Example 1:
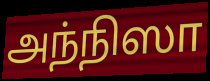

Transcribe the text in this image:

அந்நிஸா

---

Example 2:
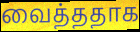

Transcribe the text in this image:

வைத்ததாக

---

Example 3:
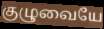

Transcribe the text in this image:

குழுவையே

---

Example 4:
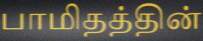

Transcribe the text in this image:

பாமிதத்தின்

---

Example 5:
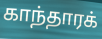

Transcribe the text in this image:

காந்தாரக்